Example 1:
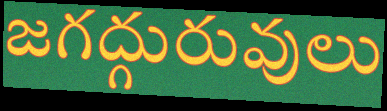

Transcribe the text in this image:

జగద్గురువులు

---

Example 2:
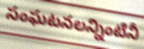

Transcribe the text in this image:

సంఘటనలన్నింటినీ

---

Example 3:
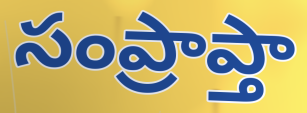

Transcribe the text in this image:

సంప్రాప్తా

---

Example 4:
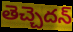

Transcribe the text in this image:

తెచ్చెదన్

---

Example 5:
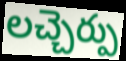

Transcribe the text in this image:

లచ్చెర్పు